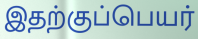
இதற்குப்பெயர்